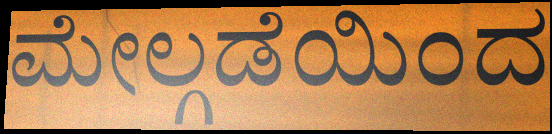
ಮೇಲ್ಗಡೆಯಿಂದ